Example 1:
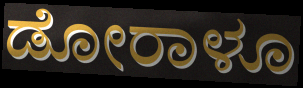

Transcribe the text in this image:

ಡೋರಾಳೂ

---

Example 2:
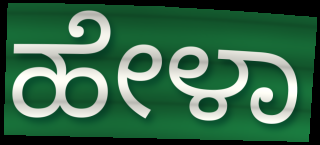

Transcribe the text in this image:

ಹೇಳಾ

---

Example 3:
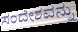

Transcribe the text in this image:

ಸಂದೇಶವನ್ನು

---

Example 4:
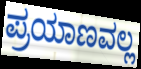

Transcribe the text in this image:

ಪ್ರಯಾಣವಲ್ಲ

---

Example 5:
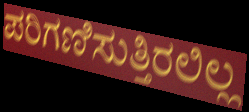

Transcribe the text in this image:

ಪರಿಗಣಿಸುತ್ತಿರಲಿಲ್ಲ